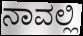
ನಾವಲ್ಲಿ